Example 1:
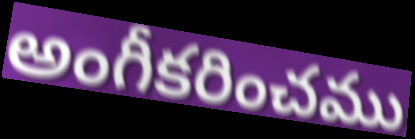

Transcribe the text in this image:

అంగీకరించము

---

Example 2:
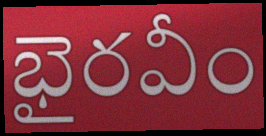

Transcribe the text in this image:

భైరవీం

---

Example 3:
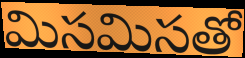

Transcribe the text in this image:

మిసమిసతో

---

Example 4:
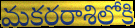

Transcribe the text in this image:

మకరరాశిలోకి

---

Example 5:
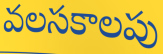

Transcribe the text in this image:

వలసకాలపు